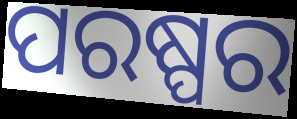
ପରଷ୍ପର